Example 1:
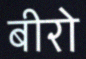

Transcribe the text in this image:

बीरो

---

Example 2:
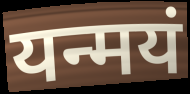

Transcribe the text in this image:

यन्मयं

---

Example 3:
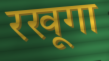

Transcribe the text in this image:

रखूगा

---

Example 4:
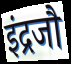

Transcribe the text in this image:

इंद्रजौ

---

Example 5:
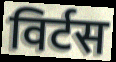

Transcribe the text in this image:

विर्टस